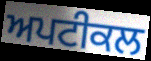
ਅਪਟੀਕਲ